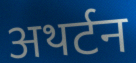
अथर्टन